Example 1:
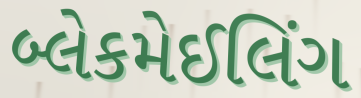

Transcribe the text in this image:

બ્લેકમેઈલિંગ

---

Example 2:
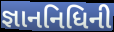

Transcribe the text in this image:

જ્ઞાનનિધિની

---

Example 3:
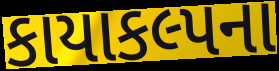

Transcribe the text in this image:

કાયાકલ્પના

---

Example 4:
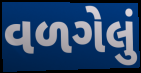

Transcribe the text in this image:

વળગેલું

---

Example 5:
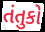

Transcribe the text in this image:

તંતુકો